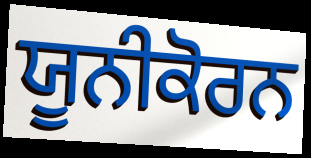
ਯੂਨੀਕੋਰਨ